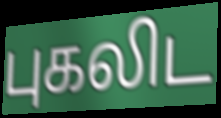
புகலிட